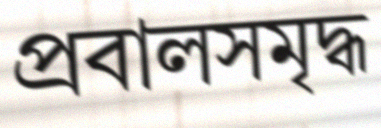
প্রবালসমৃদ্ধ